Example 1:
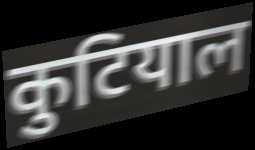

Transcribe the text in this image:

कुटियाल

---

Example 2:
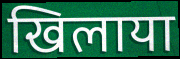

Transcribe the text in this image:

खिलाया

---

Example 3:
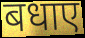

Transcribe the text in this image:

बधाए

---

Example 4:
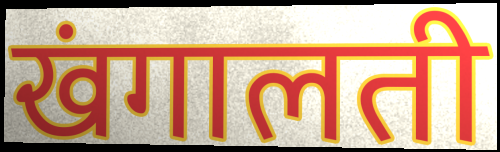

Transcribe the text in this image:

खंगालती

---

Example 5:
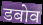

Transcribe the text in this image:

डबोव